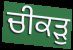
ਚੀਕੜੁ